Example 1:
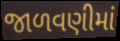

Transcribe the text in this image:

જાળવણીમાં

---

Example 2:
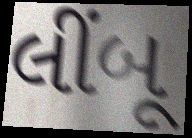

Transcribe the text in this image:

લીંબૂ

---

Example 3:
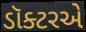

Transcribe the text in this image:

ડૉક્ટરએ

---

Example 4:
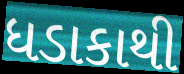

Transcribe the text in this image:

ધડાકાથી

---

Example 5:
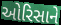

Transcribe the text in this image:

ઓરિસાને